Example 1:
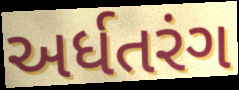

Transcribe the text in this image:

અર્ધતરંગ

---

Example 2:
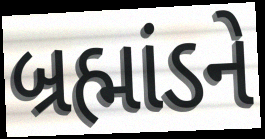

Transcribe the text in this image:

બ્રહ્માંડને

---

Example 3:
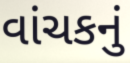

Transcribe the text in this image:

વાંચકનું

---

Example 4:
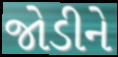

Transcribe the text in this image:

જોડીને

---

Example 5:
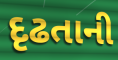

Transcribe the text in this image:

દૃઢતાની